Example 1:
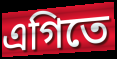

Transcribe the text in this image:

এগিতে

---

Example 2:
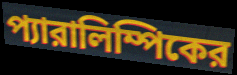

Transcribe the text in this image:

প্যারালিম্পিকের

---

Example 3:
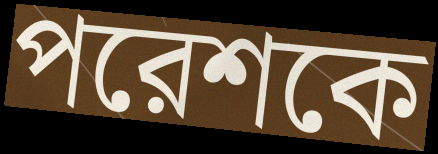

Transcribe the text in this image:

পরেশকে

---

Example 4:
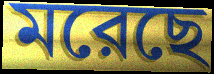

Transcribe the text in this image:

মরেছে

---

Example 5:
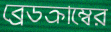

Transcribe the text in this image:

ব্রেডক্রাম্বের